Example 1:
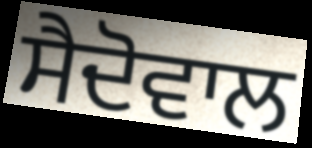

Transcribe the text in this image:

ਸੈਦੋਵਾਲ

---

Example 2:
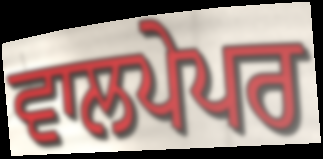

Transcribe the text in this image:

ਵਾਲਪੇਪਰ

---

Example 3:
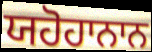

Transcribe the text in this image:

ਯਹੋਹਾਨਾਨ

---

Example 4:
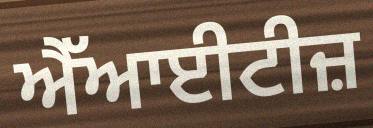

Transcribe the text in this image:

ਐੱਆਈਟੀਜ਼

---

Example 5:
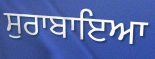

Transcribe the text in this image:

ਸੁਰਾਬਾਇਆ